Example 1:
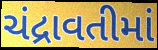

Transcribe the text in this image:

ચંદ્રાવતીમાં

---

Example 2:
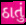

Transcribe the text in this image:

ઠાતું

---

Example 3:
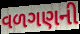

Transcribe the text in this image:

વળગણની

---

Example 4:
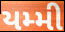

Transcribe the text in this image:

યમ્મી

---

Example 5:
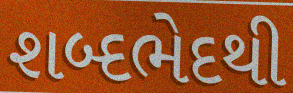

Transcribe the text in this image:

શબ્દભેદથી